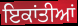
ਇਕਾਂਤੀਆਂ